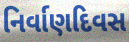
નિર્વાણદિવસ